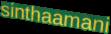
sinthaamani